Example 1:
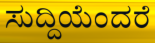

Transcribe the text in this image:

ಸುದ್ದಿಯೆಂದರೆ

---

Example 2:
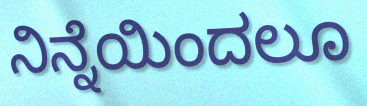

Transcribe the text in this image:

ನಿನ್ನೆಯಿಂದಲೂ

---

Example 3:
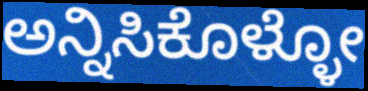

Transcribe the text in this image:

ಅನ್ನಿಸಿಕೊಳ್ಳೋ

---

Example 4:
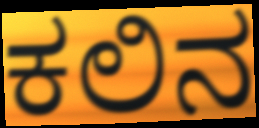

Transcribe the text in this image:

ಕಲಿನ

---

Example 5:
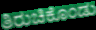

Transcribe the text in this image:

ತಿರುಚಿಕೊಂಡು